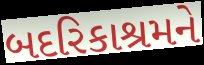
બદરિકાશ્રમને